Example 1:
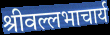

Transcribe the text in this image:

श्रीवल्लभाचार्य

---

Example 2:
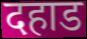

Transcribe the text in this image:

दहाड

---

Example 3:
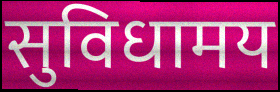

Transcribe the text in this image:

सुविधामय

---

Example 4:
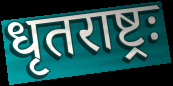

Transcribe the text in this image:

धृतराष्ट्रः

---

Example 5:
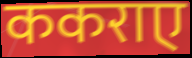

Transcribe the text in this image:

ककराए